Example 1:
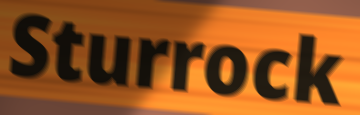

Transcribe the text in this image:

Sturrock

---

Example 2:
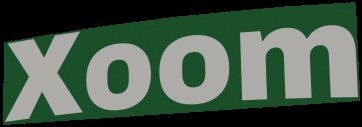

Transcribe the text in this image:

Xoom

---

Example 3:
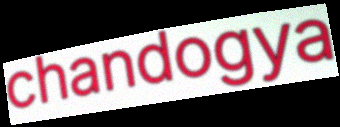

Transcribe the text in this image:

chandogya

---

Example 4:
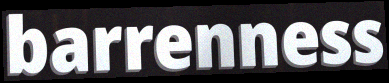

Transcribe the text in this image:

barrenness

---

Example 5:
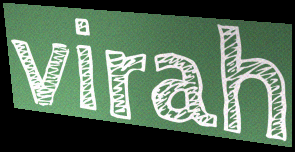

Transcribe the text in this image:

virah